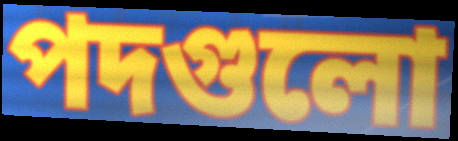
পদগুলো